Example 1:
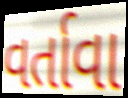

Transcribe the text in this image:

વર્તાવા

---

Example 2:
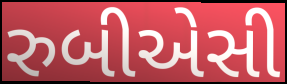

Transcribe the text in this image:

રુબીએસી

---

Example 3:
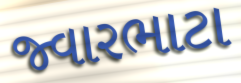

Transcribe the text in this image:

જ્વારભાટા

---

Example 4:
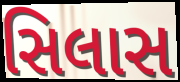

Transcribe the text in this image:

સિલાસ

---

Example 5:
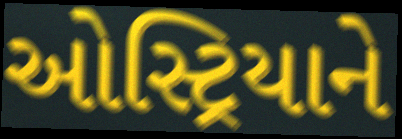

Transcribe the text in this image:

ઓસ્ટ્રિયાને